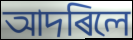
আদৰিলে